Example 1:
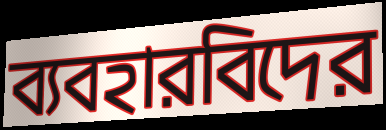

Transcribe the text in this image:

ব্যবহারবিদের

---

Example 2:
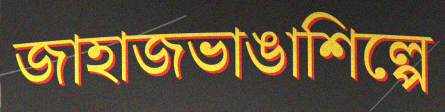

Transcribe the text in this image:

জাহাজভাঙাশিল্পে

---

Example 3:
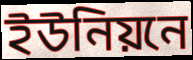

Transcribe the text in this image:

ইউনিয়নে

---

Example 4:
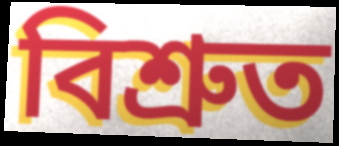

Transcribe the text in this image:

বিশ্রুত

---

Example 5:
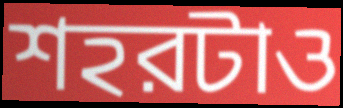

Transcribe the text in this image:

শহরটাও